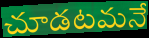
చూడటమనే